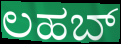
ಲಹಬ್